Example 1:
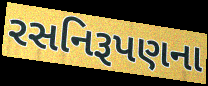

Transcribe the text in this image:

રસનિરૂપણના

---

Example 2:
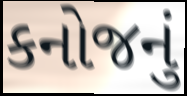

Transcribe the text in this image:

કનોજનું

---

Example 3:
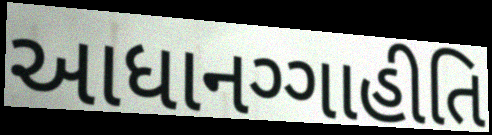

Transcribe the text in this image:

આધાનગ્ગાહીતિ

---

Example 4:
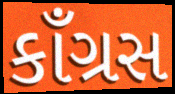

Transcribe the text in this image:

કાઁગ્રસ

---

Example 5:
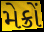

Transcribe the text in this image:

મેક્રોં